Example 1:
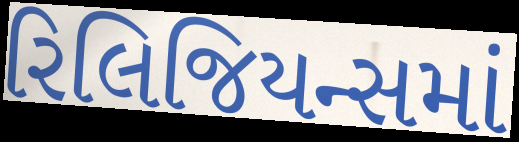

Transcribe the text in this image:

રિલિજિયન્સમાં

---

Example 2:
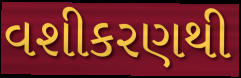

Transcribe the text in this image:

વશીકરણથી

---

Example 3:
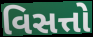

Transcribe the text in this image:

વિસત્તો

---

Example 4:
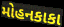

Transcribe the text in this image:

મોહનકાકા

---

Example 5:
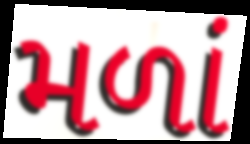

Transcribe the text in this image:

મળાં